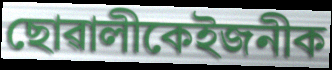
ছোৱালীকেইজনীক